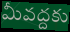
మీవద్దకు